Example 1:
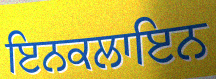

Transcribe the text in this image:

ਇਨਕਲਾਇਨ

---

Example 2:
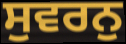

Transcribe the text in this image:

ਸੁਵਰਨੁ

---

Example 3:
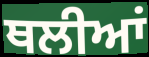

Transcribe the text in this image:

ਥਲੀਆਂ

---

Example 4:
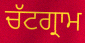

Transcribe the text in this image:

ਚੱਟਗ੍ਰਾਮ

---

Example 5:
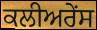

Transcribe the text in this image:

ਕਲੀਅਰੇਂਸ